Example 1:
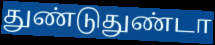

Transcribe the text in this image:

துண்டுதுண்டா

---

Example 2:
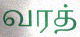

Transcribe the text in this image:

வரத்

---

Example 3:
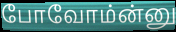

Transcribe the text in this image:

போவோம்ன்னு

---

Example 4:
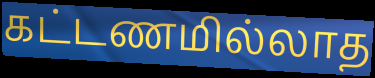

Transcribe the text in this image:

கட்டணமில்லாத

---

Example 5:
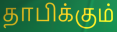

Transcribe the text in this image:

தாபிக்கும்